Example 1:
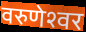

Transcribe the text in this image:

वरुणेश्वर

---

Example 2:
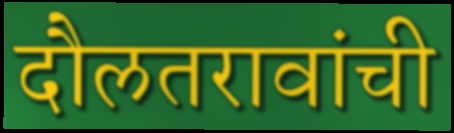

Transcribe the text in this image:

दौलतरावांची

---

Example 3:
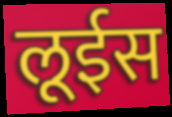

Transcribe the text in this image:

लूईस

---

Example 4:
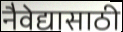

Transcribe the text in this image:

नैवेद्यासाठी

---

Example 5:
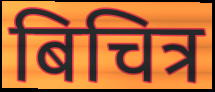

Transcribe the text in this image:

बिचित्र